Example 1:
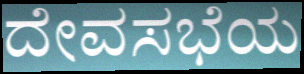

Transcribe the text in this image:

ದೇವಸಭೆಯ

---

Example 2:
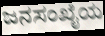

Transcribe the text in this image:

ಜನಸಂಖೈಯ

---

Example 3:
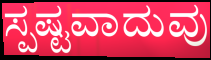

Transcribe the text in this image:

ಸ್ಪಷ್ಟವಾದುವು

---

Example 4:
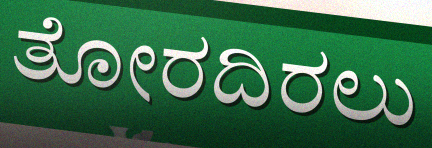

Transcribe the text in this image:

ತೋರದಿರಲು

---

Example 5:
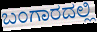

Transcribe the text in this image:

ಬಂಗಾರದಲ್ಲಿ